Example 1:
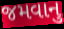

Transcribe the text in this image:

જમવાનુ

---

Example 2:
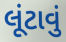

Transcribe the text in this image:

લૂંટાવું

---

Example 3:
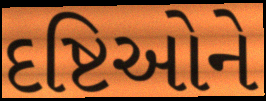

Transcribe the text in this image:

દષ્ટિઓને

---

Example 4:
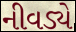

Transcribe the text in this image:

નીવડ્યે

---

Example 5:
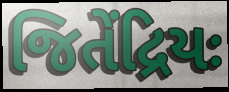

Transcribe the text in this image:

જિતેંદ્રિયઃ